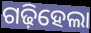
ଗଢ଼ିହେଲା